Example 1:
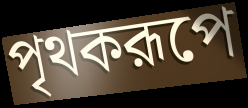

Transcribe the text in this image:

পৃথকরূপে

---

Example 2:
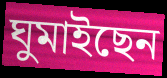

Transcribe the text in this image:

ঘুমাইছেন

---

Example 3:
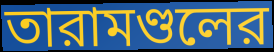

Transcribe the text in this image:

তারামণ্ডলের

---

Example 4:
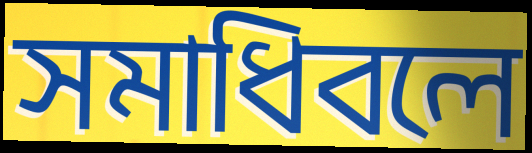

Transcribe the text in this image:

সমাধিবলে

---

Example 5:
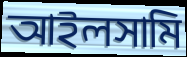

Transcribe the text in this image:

আইলসামি